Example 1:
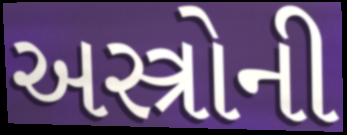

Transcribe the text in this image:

અસ્ત્રોની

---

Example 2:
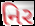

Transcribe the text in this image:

નિર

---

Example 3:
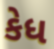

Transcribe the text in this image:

કેધ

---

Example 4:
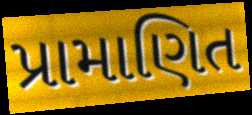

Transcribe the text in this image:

પ્રામાણિત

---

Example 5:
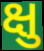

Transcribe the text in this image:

ક્ષુ